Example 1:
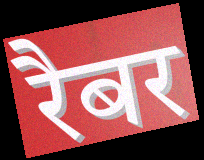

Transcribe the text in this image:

रैबर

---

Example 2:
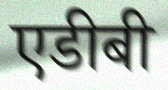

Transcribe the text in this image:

एडीबी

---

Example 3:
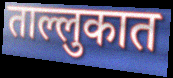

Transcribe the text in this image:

ताल्लुकात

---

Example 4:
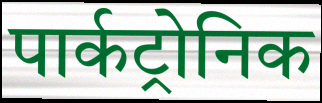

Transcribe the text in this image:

पार्कट्रोनिक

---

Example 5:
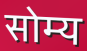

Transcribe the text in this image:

सोम्य